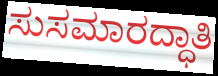
ಸುಸಮಾರದ್ಧಾತಿ